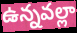
ఉన్నవల్లా